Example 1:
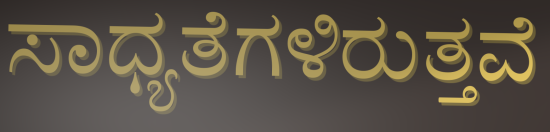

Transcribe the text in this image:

ಸಾಧ್ಯತೆಗಳಿರುತ್ತವೆ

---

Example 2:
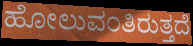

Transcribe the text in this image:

ಹೋಲುವಂತಿರುತ್ತದೆ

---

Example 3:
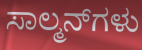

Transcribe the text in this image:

ಸಾಲ್ಮನ್‌ಗಳು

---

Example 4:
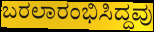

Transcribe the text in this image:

ಬರಲಾರಂಭಿಸಿದ್ದವು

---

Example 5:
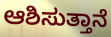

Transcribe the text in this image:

ಆಶಿಸುತ್ತಾನೆ